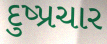
દુષ્પ્રચાર